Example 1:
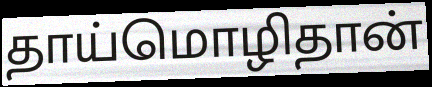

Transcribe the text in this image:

தாய்மொழிதான்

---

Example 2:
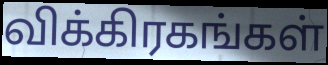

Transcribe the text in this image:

விக்கிரகங்கள்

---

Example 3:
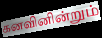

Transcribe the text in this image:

கனவினின்றும்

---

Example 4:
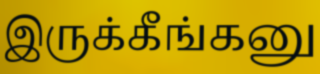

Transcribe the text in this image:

இருக்கீங்கனு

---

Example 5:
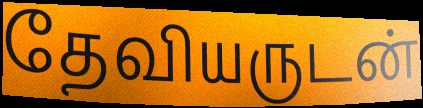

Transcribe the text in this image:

தேவியருடன்